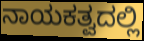
ನಾಯಕತ್ವದಲ್ಲಿ